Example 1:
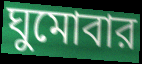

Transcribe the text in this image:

ঘুমোবার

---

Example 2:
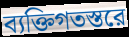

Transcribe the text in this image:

ব্যক্তিগতস্তরে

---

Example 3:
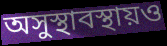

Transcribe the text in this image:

অসুস্থাবস্থায়ও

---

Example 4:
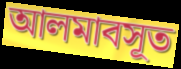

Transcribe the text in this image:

আলমাবসূত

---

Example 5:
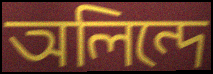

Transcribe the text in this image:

অলিন্দে